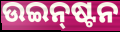
ଉଇନ୍‌ଷ୍ଟନ